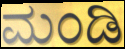
ಮಂಡಿ